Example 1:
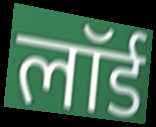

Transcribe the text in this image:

लॉर्ड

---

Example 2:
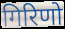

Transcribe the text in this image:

गिरिणो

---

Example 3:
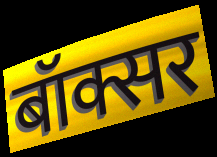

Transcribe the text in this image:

बॉक्सर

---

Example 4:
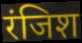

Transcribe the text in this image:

रंजिश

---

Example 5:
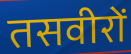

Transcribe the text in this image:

तसवीरों